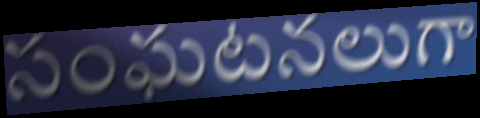
సంఘటనలుగా